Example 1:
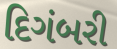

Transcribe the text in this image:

દિગંબરી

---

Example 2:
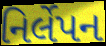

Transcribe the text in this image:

નિર્લેપન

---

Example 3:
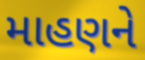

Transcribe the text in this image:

માહણને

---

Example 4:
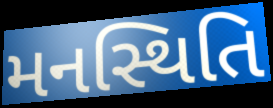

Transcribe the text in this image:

મનસ્થિતિ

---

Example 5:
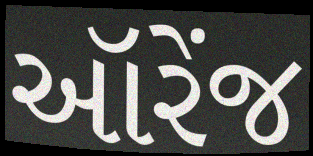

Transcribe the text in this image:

ઑરેંજ